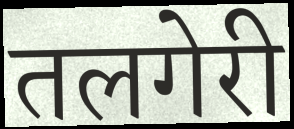
तलगेरी